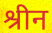
श्रीन